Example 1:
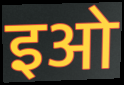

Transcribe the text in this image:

इओ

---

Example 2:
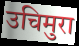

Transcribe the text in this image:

उचिमुरा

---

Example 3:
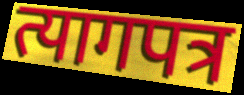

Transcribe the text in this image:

त्‍यागपत्र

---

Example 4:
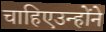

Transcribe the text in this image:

चाहिएउन्होंने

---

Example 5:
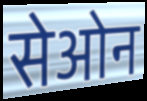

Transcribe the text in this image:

सेओन